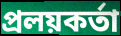
প্রলয়কর্তা